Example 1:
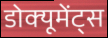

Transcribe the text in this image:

डोक्यूमेंट्स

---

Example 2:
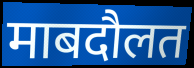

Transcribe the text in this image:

माबदौलत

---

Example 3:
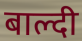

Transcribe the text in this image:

बाल्दी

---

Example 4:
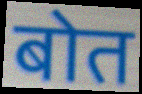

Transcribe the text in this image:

बोत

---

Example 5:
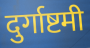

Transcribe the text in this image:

दुर्गाष्टमी